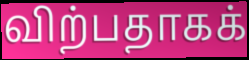
விற்பதாகக்